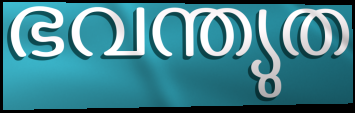
ഭവന്ത്യുത